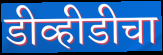
डीव्हीडीचा